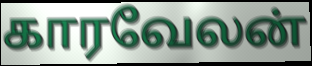
காரவேலன்